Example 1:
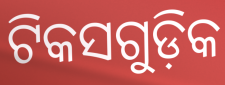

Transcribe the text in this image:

ଟିକସଗୁଡ଼ିକ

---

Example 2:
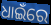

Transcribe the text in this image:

ଧାଇଁରେ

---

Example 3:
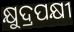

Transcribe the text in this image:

କ୍ଷୁଦ୍ରପକ୍ଷୀ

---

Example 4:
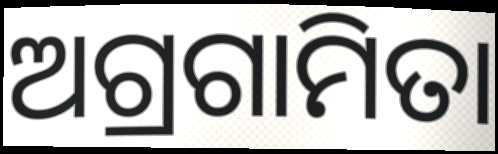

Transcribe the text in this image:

ଅଗ୍ରଗାମିତା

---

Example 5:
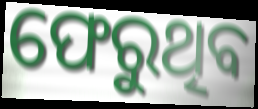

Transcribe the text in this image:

ଫେରୁଥିବ